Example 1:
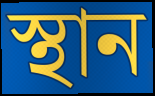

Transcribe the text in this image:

স্থান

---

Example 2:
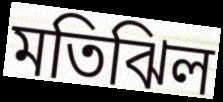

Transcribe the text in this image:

মতিঝিল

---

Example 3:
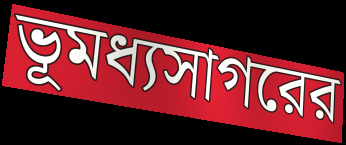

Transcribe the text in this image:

ভূমধ্যসাগরের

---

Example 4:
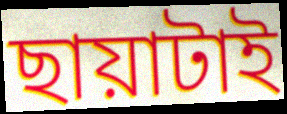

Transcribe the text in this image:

ছায়াটাই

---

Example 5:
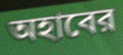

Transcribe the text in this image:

অহাবের